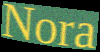
Nora